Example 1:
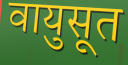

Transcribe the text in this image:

वायुसूत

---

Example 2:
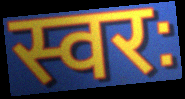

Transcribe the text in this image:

स्वरः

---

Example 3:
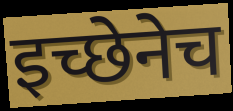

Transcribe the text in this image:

इच्छेनेच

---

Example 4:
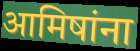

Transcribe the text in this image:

आमिषांना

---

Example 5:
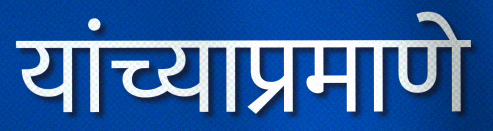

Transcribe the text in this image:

यांच्याप्रमाणे